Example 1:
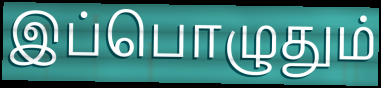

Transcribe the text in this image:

இப்பொழுதும்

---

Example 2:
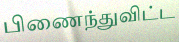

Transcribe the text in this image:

பிணைந்துவிட்ட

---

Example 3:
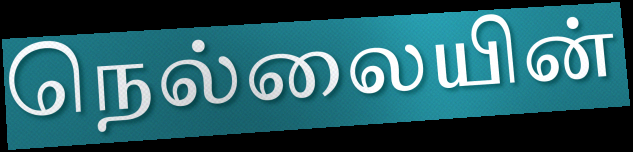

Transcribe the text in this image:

நெல்லையின்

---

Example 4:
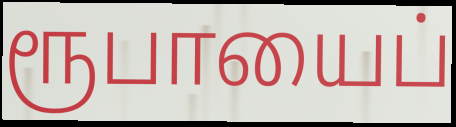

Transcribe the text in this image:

ரூபாயைப்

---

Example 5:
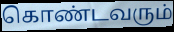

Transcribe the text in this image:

கொண்டவரும்